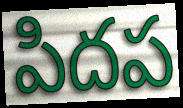
పిదప